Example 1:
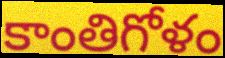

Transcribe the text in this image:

కాంతిగోళం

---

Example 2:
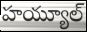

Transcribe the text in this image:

హయ్యూల్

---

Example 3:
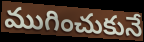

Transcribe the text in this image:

ముగించుకునే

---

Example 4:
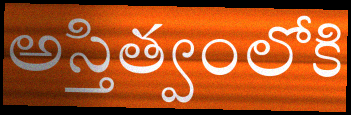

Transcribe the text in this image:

అస్తిత్వంలోకి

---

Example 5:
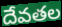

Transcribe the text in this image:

దేవతల